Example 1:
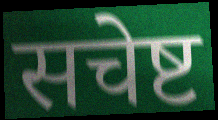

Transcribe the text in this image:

सचेष्ट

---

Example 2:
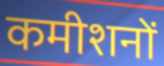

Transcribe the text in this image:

कमीशनों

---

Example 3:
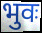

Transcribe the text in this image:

भुवः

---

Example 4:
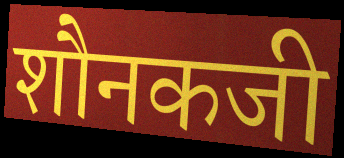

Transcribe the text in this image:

शौनकजी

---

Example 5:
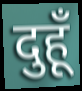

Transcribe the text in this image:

दुहूँ